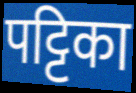
पट्टिका